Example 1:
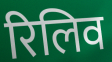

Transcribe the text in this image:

रिलिव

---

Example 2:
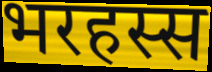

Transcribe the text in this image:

भरहस्स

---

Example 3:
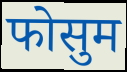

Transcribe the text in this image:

फोसुम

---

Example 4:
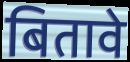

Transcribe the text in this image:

बितावे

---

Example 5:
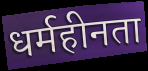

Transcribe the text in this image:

धर्महीनता